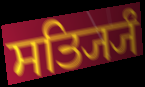
ਸਤ੍ਯ੍ਯਿੰ